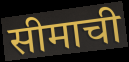
सीमाची